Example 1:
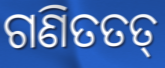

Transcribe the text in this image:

ଗଣିତତତ୍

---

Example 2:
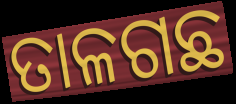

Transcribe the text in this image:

ତାଳଗଛ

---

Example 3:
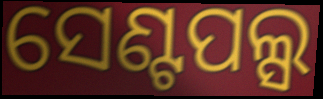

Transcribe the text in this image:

ସେଣ୍ଟପଲ୍ସ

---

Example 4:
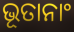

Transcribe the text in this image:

ଭୂତାନାଂ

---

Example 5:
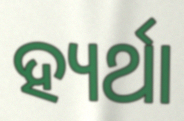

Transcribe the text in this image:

ହ୍ୟର୍ଥା